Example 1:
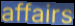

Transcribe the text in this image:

affairs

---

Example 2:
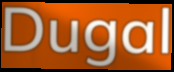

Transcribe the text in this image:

Dugal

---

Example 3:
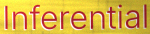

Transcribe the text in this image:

Inferential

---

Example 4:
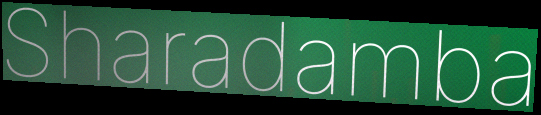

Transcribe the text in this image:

Sharadamba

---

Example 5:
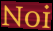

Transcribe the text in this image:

Noi